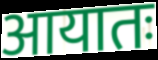
आयातः